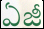
ఏజీ